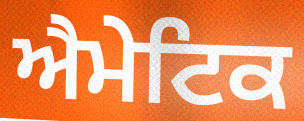
ਐਮੇਟਿਕ